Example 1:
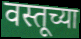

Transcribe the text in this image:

वस्तूच्या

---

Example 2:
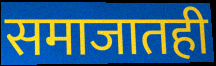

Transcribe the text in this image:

समाजातही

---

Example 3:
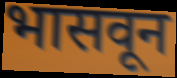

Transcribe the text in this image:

भासवून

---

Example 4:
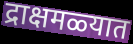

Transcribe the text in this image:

द्राक्षमळ्यात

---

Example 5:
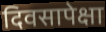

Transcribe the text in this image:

दिवसापेक्षा